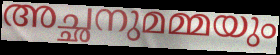
അച്ഛനുമമ്മയും